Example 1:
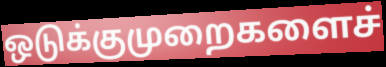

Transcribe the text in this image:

ஒடுக்குமுறைகளைச்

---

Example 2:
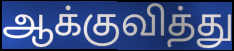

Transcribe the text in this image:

ஆக்குவித்து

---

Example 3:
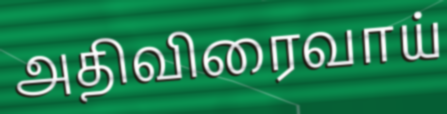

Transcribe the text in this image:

அதிவிரைவாய்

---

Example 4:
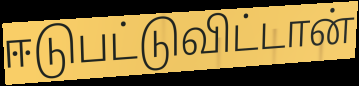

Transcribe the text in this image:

ஈடுபட்டுவிட்டான்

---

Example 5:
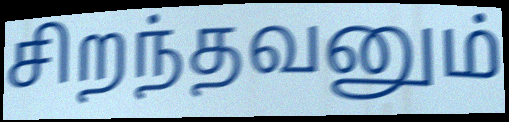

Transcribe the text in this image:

சிறந்தவனும்